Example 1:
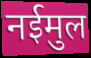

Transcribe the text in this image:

नईमुल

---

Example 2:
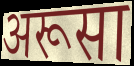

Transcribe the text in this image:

अरूसा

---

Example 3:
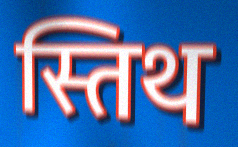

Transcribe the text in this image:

स्तिथ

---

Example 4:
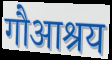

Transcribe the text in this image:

गौआश्रय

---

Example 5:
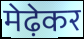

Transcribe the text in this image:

मेढ़ेकर